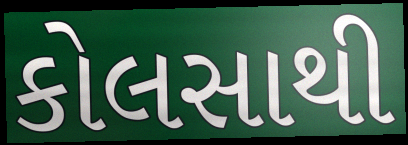
કોલસાથી